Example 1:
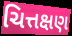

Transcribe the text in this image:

ચિત્તક્ષણ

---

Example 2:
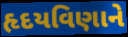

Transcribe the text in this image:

હૃદયવિણાને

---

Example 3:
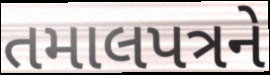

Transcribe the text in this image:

તમાલપત્રને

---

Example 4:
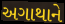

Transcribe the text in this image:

અગાથાને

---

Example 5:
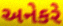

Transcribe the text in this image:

અનેકરે